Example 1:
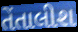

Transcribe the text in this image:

તેંતાલીશ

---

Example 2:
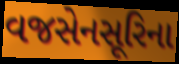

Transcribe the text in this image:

વજસેનસૂરિના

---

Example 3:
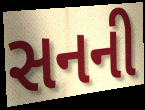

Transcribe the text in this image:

સનની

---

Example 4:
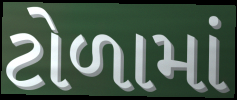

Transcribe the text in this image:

ટોળામાં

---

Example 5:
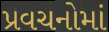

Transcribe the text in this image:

પ્રવચનોમાં